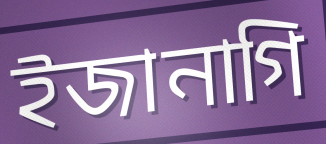
ইজানাগি